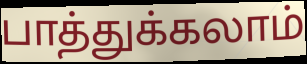
பாத்துக்கலாம்